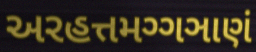
અરહત્તમગ્ગઞાણં